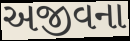
અજીવના